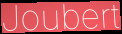
Joubert